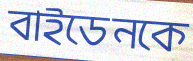
বাইডেনকে